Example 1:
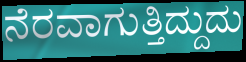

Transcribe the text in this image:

ನೆರವಾಗುತ್ತಿದ್ದುದು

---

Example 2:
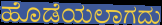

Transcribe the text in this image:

ಹೊಡೆಯಲಾಗದು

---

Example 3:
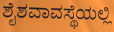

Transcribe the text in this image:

ಶೈಶವಾವಸ್ಥೆಯಲ್ಲಿ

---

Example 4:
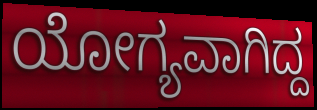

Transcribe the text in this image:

ಯೋಗ್ಯವಾಗಿದ್ದ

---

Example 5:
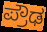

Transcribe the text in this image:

ಪ್ರೌಢ